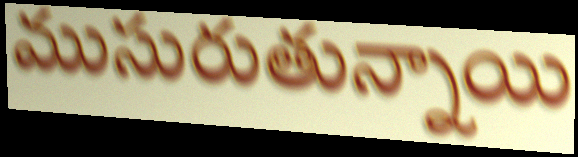
ముసురుతున్నాయి